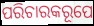
ପରିଚାରକରୂପେ